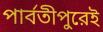
পার্বতীপুরেই